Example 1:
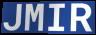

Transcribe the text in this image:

JMIR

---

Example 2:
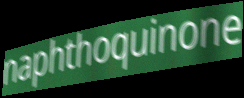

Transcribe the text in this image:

naphthoquinone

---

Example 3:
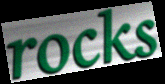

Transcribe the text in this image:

rocks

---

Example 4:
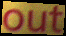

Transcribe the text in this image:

out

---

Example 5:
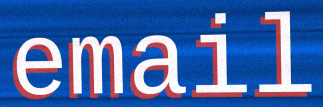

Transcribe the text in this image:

email